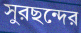
সুরছন্দের